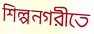
শিল্পনগরীতে